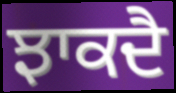
ਝਾਕਦੈ